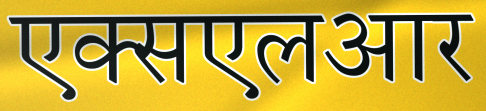
एक्सएलआर